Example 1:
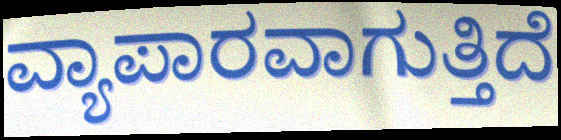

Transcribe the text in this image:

ವ್ಯಾಪಾರವಾಗುತ್ತಿದೆ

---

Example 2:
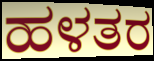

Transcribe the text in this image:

ಹಳತರ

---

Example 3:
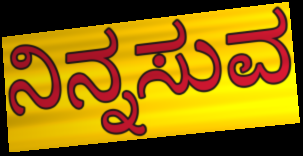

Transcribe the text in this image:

ನಿನ್ನಸುವ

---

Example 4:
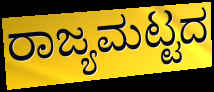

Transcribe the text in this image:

ರಾಜ್ಯಮಟ್ಟದ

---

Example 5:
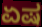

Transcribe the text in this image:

ಏಷ